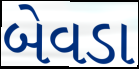
બેવડા